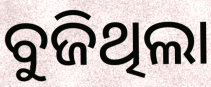
ବୁଜିଥିଲା